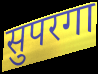
सुपरगा